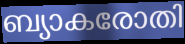
ബ്യാകരോതി